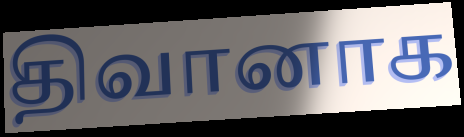
திவானாக